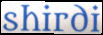
shirdi